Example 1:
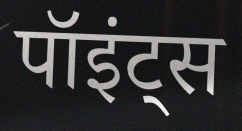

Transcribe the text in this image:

पॉइंट्स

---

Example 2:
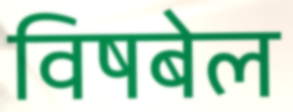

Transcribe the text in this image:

विषबेल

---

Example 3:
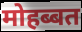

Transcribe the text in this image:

मोहब्बत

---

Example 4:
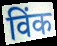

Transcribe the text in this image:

विंक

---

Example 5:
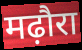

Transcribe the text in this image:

मढ़ौरा